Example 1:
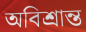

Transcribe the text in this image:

অবিশ্ৰান্ত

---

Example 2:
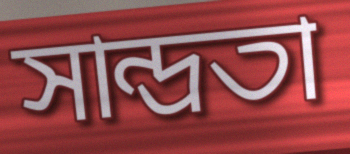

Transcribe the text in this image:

সান্দ্ৰতা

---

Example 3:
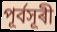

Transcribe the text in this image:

পূৰ্বসূৰী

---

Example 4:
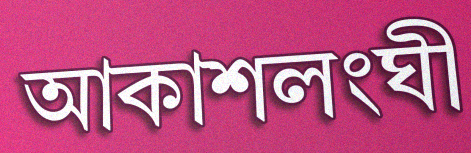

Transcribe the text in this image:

আকাশলংঘী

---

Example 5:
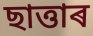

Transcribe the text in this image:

ছাত্তাৰ